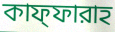
কাফ্ফারাহ